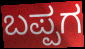
ಬಪ್ಪಗ